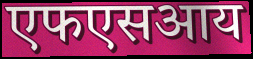
एफएसआय